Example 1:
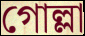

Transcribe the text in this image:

গোল্লা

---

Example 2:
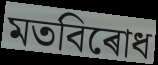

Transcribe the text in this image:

মতবিৰোধ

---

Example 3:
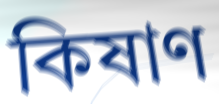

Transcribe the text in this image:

কিষাণ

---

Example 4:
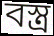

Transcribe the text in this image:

বস্ত্ৰ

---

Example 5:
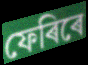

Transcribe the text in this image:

ফেৰিৰে